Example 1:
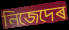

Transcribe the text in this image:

নিজেদেৰ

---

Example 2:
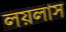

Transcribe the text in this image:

লয়লাস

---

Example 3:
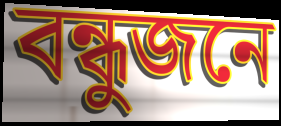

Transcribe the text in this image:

বন্ধুজনে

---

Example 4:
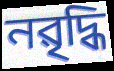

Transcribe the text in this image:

নৱৃদ্ধি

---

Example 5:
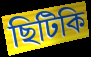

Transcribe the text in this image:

ছিটিকি